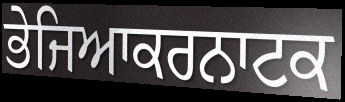
ਭੇਜਿਆਕਰਨਾਟਕ